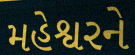
મહેશ્વરને